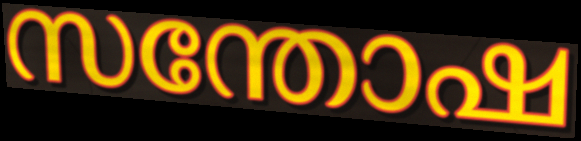
സന്തോഷ